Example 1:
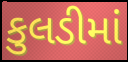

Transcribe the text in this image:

કુલડીમાં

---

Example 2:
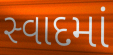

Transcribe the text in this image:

સ્વાદમાં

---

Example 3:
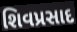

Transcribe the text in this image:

શિવપ્રસાદ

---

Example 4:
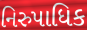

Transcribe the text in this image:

નિરુપાધિક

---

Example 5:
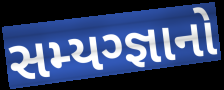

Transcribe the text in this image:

સમ્યગ્જ્ઞાનો